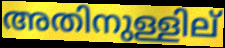
അതിനുള്ളില്